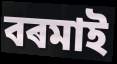
বৰমাই